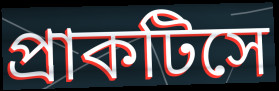
প্রাকটিসে